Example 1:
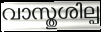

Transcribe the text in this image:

വാസ്തുശില്പ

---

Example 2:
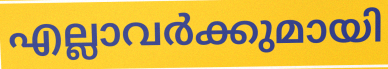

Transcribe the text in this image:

എല്ലാവർക്കുമായി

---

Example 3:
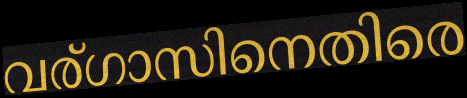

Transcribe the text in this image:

വര്ഗാസിനെതിരെ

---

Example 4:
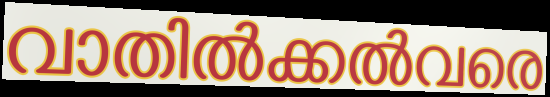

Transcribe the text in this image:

വാതിൽക്കൽവരെ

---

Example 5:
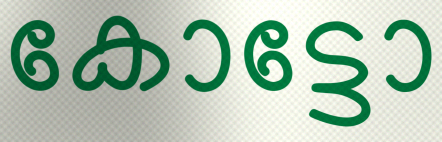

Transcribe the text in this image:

കോട്ടോ